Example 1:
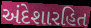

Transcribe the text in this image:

અંદેશારહિત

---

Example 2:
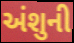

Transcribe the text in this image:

અંશુની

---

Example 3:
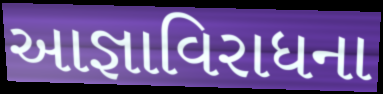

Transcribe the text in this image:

આજ્ઞાવિરાધના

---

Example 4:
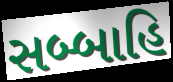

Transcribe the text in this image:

સબ્બાહિ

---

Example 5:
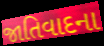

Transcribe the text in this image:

જાતિવાદના